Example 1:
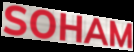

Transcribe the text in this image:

SOHAM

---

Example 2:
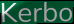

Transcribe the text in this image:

Kerbo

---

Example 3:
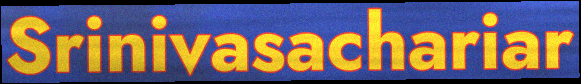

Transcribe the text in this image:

Srinivasachariar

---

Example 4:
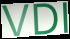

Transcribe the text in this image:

VDI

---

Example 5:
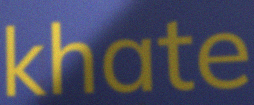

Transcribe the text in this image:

khate